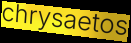
chrysaetos